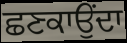
ਛਣਕਾਉਂਦਾ